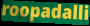
roopadalli